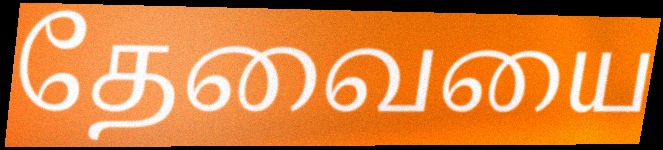
தேவையை